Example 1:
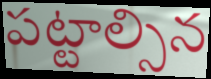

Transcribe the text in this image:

పట్టాల్సిన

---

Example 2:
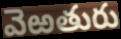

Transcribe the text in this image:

వెఱతురు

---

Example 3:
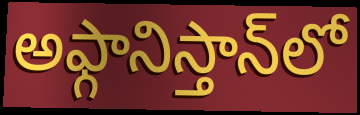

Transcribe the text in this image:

అఫ్గానిస్తాన్‌లో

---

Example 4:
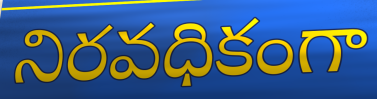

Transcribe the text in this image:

నిరవధికంగా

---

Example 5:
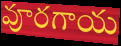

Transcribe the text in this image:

వూరగాయ